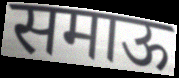
समाऊ